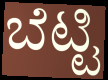
ಬೆಟ್ಟಿ